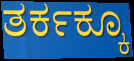
ತರ್ಕಕ್ಕೂ